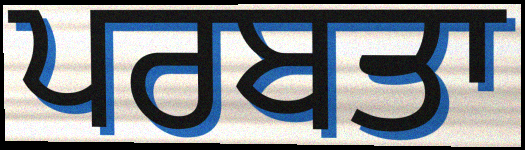
ਪਰਬਤਾ